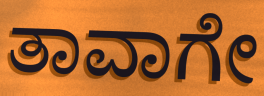
ತಾವಾಗೇ